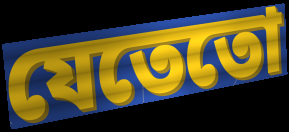
যেতেতো